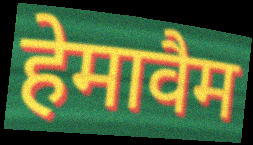
हेमावैम